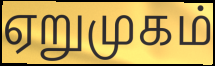
ஏறுமுகம்